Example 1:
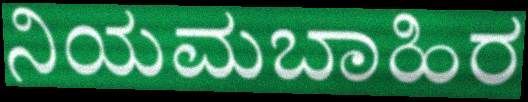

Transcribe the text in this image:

ನಿಯಮಬಾಹಿರ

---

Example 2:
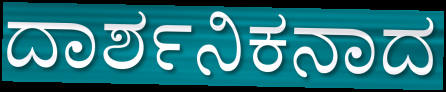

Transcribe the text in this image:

ದಾರ್ಶನಿಕನಾದ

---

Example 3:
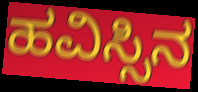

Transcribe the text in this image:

ಹವಿಸ್ಸಿನ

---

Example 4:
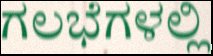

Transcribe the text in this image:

ಗಲಭೆಗಳಲ್ಲಿ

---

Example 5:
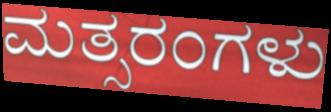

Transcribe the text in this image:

ಮತ್ಸರಂಗಳು